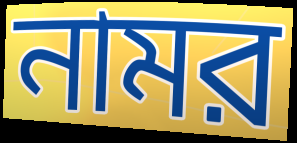
নামর